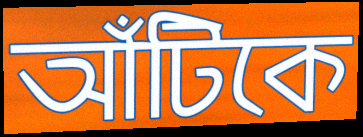
আঁটিকে